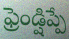
ఫ్రెండ్షిప్పే